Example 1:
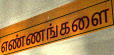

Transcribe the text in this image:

எண்ணங்களை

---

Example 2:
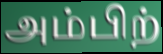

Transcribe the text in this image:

அம்பிற்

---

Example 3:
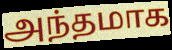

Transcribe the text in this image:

அந்தமாக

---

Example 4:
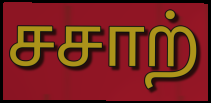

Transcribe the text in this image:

சசாற்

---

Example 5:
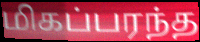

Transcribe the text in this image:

மிகப்பரந்த